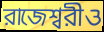
রাজেশ্বরীও